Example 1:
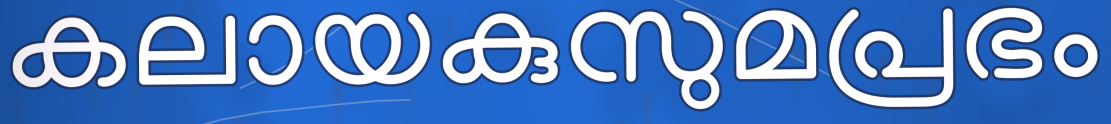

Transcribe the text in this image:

കലായകുസുമപ്രഭം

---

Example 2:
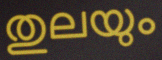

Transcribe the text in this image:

തുലയും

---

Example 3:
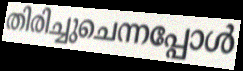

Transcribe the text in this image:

തിരിച്ചുചെന്നപ്പോൾ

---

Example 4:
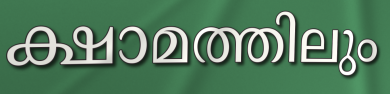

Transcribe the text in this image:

ക്ഷാമത്തിലും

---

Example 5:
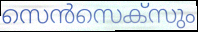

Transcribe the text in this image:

സെൻസെക്സും